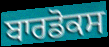
ਬਾਰਡੋਕਸ